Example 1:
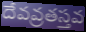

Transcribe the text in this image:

దేవవ్రతస్తవ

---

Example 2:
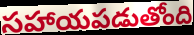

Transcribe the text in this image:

సహాయపడుతోంది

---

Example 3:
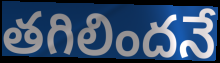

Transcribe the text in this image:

తగిలిందనే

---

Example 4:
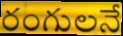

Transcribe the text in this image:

రంగులనే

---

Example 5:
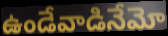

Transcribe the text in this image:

ఉండేవాడినేమో